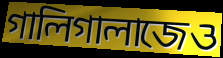
গালিগালাজেও